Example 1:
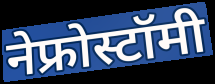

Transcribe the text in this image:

नेफ्रोस्टॉमी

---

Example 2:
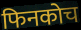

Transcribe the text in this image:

फिनकोच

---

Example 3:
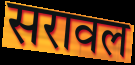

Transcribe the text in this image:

सरावल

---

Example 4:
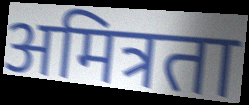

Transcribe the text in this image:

अमित्रता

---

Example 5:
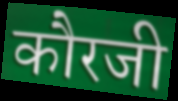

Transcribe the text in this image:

कौरजी